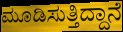
ಮೂಡಿಸುತ್ತಿದ್ದಾನೆ